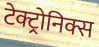
टेक्ट्रोनिक्स